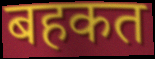
बहकत